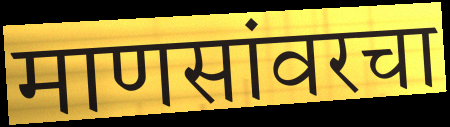
माणसांवरचा